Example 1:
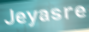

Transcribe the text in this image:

Jeyasre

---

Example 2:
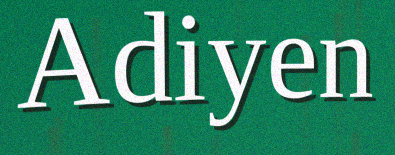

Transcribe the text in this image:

Adiyen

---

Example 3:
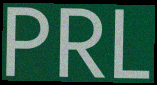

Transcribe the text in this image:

PRL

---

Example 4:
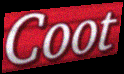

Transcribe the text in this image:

Coot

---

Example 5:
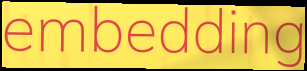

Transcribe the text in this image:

embedding